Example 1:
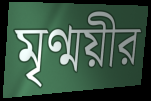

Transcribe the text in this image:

মৃণ্ময়ীর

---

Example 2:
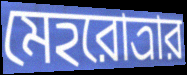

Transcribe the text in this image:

মেহরোত্রার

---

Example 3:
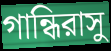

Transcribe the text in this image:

গান্ধিরাসু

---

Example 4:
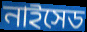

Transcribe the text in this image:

নাইসেড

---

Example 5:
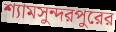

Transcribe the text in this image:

শ্যামসুন্দরপুরের